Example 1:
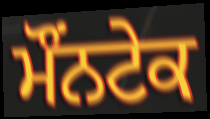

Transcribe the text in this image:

ਮੌਂਨਟੇਕ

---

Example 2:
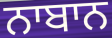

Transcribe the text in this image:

ਨਾਬਾਨ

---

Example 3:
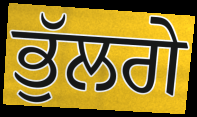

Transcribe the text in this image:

ਭੁੱਲਗੇ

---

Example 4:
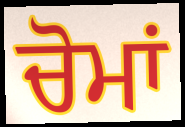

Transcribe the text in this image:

ਚੋਮਾਂ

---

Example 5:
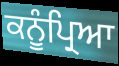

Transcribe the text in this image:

ਕਨੂੰਪ੍ਰਿਆ